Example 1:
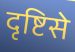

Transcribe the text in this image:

दृष्टिसे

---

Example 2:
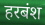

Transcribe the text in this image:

हरबंश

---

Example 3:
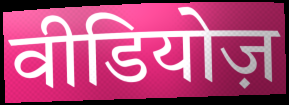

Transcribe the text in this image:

वीडियोज़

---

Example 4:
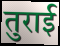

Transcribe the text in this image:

तुराई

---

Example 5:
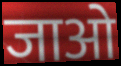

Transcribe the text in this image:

जाओ